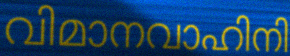
വിമാനവാഹിനി